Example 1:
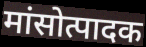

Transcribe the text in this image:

मांसोत्पादक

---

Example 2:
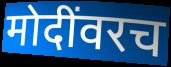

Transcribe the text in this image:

मोदींवरच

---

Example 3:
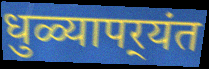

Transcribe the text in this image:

धुळ्यापर्यंत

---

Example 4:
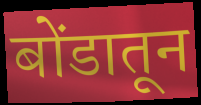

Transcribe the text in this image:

बोंडातून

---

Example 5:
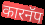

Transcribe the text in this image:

कारनॅप